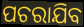
ପଚରାଯିବ